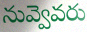
నువ్వెవరు